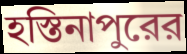
হস্তিনাপুরের